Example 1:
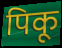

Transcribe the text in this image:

पिकू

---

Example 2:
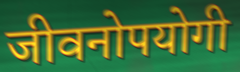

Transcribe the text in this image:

जीवनोपयोगी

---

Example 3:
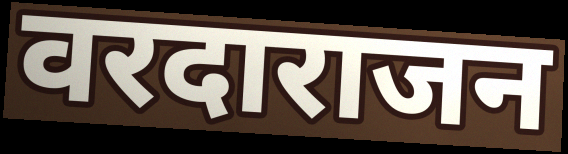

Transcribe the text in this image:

वरदाराजन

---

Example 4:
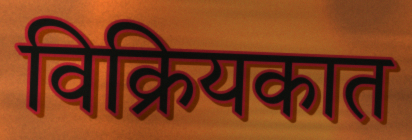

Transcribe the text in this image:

विक्रियकात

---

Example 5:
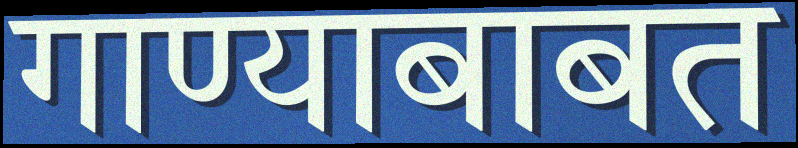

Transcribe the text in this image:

गाण्याबाबत